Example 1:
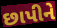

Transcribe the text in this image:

છાપીને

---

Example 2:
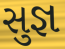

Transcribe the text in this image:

સુજ્ઞ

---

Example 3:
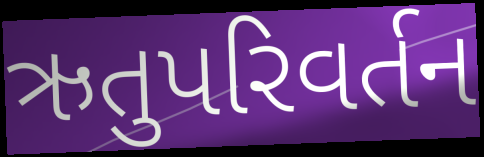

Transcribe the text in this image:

ઋતુપરિવર્તન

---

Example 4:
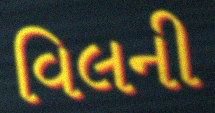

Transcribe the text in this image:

વિલની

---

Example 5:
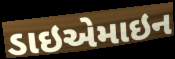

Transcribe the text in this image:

ડાઇએમાઇન